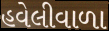
હવેલીવાળા